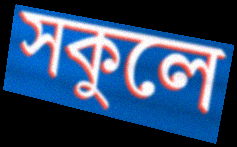
সকুলে